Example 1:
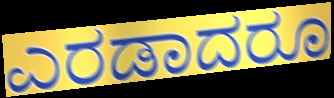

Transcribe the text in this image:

ಎರಡಾದರೂ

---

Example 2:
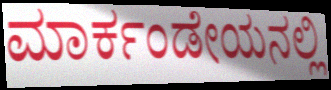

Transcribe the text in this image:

ಮಾರ್ಕಂಡೇಯನಲ್ಲಿ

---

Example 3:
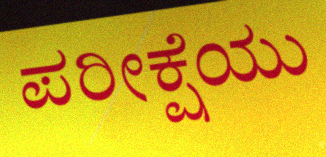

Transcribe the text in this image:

ಪರೀಕ್ಷೆಯು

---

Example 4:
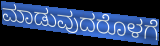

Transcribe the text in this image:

ಮಾಡುವುದರೊಳಗೆ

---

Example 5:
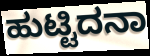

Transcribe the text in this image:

ಹುಟ್ಟಿದನಾ